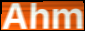
Ahm